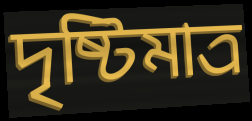
দৃষ্টিমাত্র